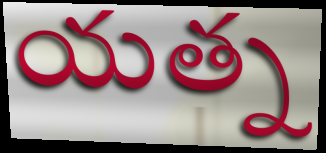
యత్న